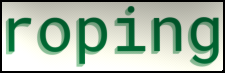
roping